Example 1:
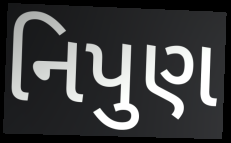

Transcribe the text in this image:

નિપુણ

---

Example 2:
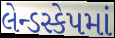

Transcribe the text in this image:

લેન્ડસ્કેપમાં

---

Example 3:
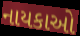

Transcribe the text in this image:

નાયકાઓ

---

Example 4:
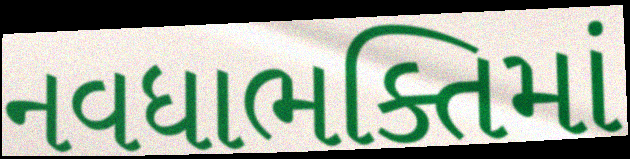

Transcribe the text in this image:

નવધાભક્તિમાં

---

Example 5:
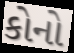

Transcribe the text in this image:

કોનો